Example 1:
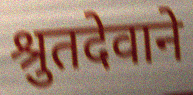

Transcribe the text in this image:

श्रुतदेवाने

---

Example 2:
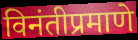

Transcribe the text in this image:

विनंतीप्रमाणे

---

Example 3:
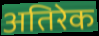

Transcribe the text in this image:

अतिरेक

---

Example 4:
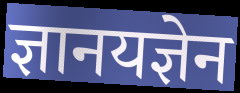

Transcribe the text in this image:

ज्ञानयज्ञेन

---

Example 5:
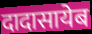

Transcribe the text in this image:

दादासायेब